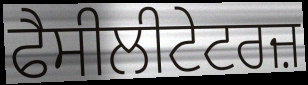
ਫੈਸੀਲੀਟੇਟਰਜ਼